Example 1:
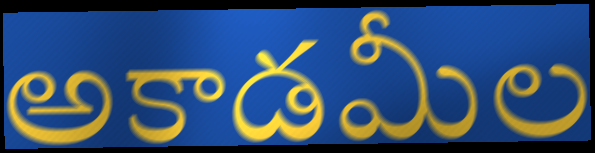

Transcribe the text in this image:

అకాడమీల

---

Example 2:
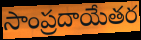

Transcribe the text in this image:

సాంప్రదాయేతర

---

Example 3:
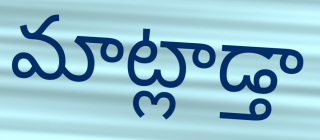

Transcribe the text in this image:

మాట్లాడ్తా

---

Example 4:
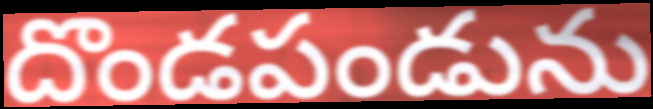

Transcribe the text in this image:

దొండపండును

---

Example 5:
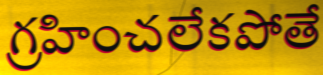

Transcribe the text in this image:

గ్రహించలేకపోతే